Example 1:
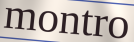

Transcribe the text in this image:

montro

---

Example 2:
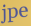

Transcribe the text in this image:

jpe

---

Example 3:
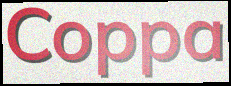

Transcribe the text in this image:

Coppa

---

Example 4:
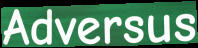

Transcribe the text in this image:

Adversus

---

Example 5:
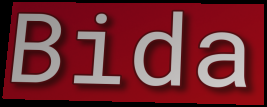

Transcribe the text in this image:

Bida